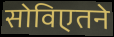
सोविएतने